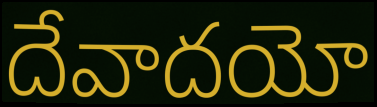
దేవాదయో